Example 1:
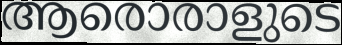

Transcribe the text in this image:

ആരൊരാളുടെ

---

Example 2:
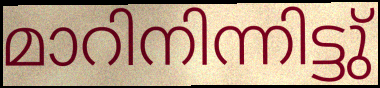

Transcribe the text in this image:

മാറിനിന്നിട്ടു്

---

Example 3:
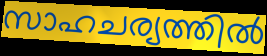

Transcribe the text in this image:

സാഹചര്യത്തിൽ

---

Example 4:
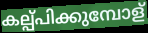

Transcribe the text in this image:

കല്പ്പിക്കുമ്പോള്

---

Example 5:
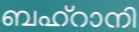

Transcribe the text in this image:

ബഹ്റാനി